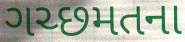
ગચ્છમતના